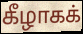
கீழாகக்